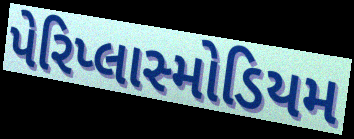
પેરિપ્લાસ્મોડિયમ